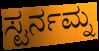
ಸ್ಟರ್ನಮ್ನ